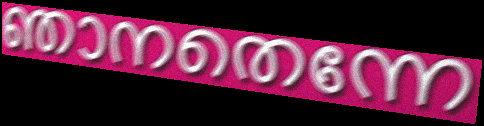
ഞാനതെന്നേ